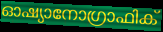
ഓഷ്യാനോഗ്രാഫിക്